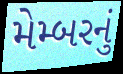
મેમ્બરનું